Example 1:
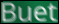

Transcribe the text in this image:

Buet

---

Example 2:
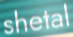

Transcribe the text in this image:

shetal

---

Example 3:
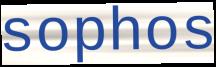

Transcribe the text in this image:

sophos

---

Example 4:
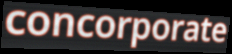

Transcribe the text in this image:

concorporate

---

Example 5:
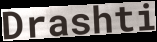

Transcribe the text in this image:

Drashti